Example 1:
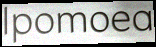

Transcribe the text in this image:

Ipomoea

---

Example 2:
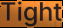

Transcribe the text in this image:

Tight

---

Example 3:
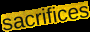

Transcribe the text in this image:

sacrifices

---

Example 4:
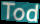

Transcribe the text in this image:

Tod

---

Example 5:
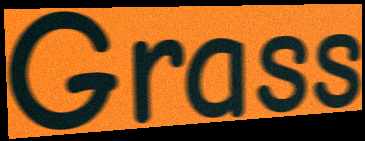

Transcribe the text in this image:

Grass